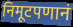
निमूटपणानं